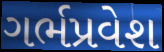
ગર્ભપ્રવેશ